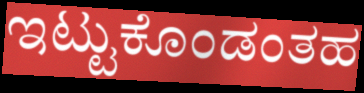
ಇಟ್ಟುಕೊಂಡಂತಹ